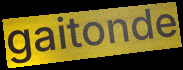
gaitonde